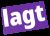
lagt